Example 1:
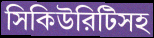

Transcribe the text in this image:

সিকিউরিটিসহ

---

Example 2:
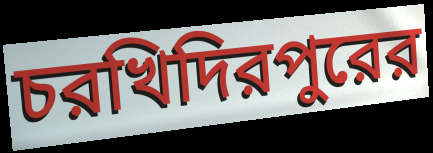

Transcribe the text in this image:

চরখিদিরপুরের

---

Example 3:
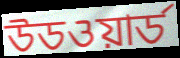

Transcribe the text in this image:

উডওয়ার্ড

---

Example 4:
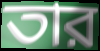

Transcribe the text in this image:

তার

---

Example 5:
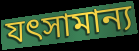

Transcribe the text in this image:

যৎসামান্য